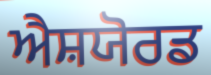
ਐਸ਼ਯੋਰਡ